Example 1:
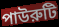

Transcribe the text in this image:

পাউরুটি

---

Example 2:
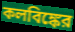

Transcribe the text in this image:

কলবিঙ্কের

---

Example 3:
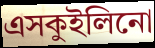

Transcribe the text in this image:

এসকুইলিনো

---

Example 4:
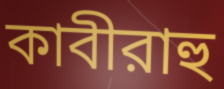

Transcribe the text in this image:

কাবীরাহু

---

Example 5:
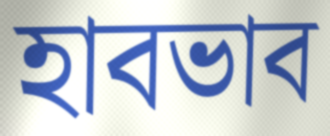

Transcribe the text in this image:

হাবভাব